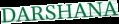
DARSHANA